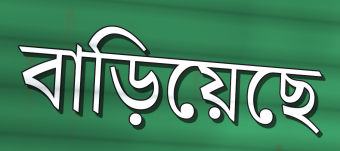
বাড়িয়েছে